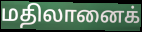
மதிலானைக்